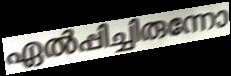
ഏൽപ്പിച്ചിരുന്നോ